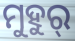
ମୁହୁର୍